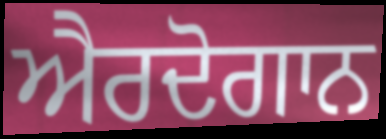
ਐਰਦੋਗਾਨ